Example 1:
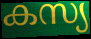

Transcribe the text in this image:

കസ്യ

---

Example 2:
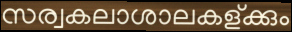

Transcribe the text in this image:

സര്വകലാശാലകള്ക്കും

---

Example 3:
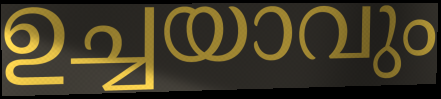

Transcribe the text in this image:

ഉച്ചയാവും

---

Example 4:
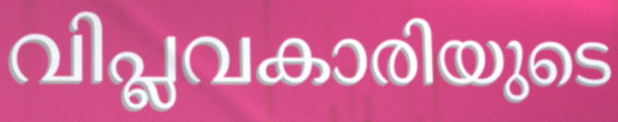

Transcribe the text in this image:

വിപ്ലവകാരിയുടെ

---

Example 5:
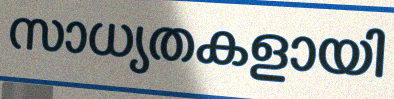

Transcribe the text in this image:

സാധ്യതകളായി